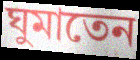
ঘুমাতেন